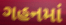
ગહનમાં